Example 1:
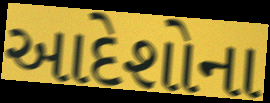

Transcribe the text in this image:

આદેશોના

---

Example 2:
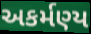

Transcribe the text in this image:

અકર્મણ્ય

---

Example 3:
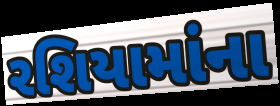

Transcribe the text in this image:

રશિયામાંના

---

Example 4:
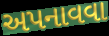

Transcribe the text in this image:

અપનાવવા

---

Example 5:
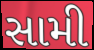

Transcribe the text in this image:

સામી